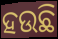
ହଉଛି